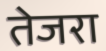
तेजरा